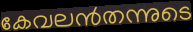
കേവലൻതന്നുടെ